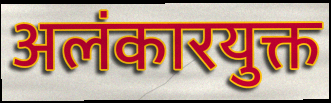
अलंकारयुक्त